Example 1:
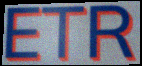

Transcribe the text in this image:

ETR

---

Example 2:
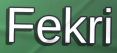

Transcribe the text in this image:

Fekri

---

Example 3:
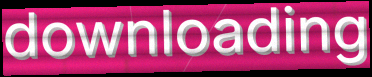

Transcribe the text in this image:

downloading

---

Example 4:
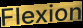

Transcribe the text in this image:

Flexion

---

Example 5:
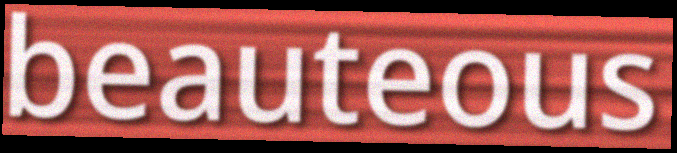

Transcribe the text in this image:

beauteous